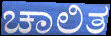
ಚಾಲಿತ